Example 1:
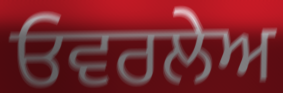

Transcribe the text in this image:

ਓਵਰਲੇਅ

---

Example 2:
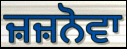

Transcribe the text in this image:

ਜ਼ਜ਼ਨੋਵਾ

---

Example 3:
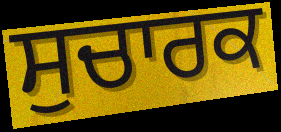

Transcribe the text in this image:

ਸੁਚਾਰਕ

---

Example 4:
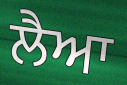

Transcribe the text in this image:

ਲੈਆ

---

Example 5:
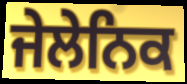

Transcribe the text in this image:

ਜੇਲੇਨਿਕ